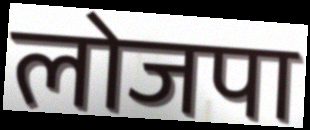
लोजपा